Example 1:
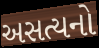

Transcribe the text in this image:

અસત્યનો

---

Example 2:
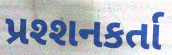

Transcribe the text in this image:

પ્રશ્શનકર્તા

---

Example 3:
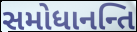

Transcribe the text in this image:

સમોધાનન્તિ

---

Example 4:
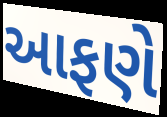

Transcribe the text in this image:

આફણે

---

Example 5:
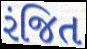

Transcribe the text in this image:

રંજિત